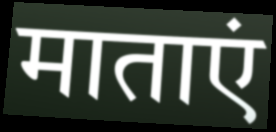
माताएं